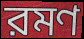
রমণ